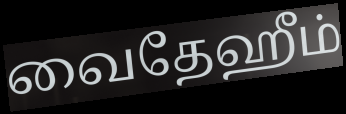
வைதேஹீம்